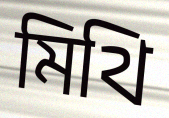
মিথি